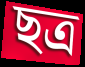
ছত্র